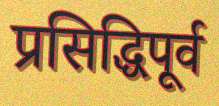
प्रसिद्धिपूर्व